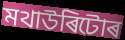
মথাউৰিটোৰ